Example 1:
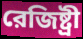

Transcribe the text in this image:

রেজিষ্ট্রী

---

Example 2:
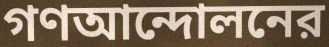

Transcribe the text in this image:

গণআন্দোলনের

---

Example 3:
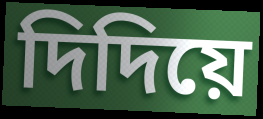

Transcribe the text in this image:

দিদিয়ে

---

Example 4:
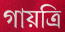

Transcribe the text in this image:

গায়ত্রি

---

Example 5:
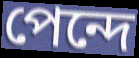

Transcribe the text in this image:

পেন্দে